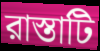
রাস্তাটি